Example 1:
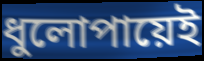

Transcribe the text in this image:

ধুলোপায়েই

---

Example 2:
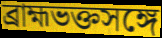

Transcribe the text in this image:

ব্রাহ্মভক্তসঙ্গে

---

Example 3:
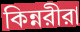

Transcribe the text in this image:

কিন্নরীরা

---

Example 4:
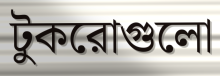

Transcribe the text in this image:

টুকরোগুলো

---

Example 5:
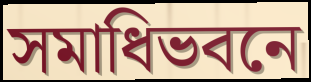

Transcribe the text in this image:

সমাধিভবনে